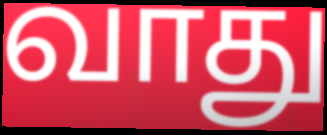
வாது